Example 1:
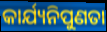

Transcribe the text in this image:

କାର୍ଯ୍ୟନିପୁଣତା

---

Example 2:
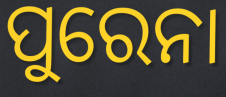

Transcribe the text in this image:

ପୁରେନା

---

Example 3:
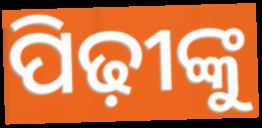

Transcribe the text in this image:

ପିଢ଼ୀଙ୍କୁ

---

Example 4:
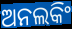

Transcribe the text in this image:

ଅନଲକିଂ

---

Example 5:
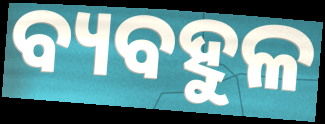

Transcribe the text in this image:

ବ୍ୟବହୁଳ